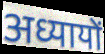
अध्यायों